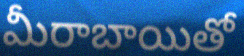
మీరాబాయితో